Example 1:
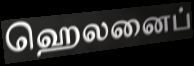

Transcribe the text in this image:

ஹெலனைப்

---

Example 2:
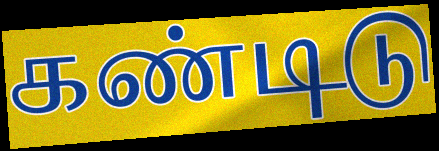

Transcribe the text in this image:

கண்டிடு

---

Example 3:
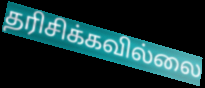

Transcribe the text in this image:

தரிசிக்கவில்லை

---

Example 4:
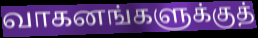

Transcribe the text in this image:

வாகனங்களுக்குத்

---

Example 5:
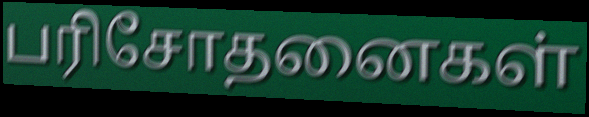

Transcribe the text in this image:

பரிசோதனைகள்